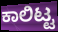
ಕಾಲಿಟ್ಟ